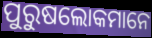
ପୁରୁଷଲୋକମାନେ